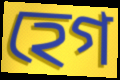
হেগ